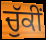
ਚੁੱਕੀਂ